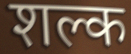
शल्क